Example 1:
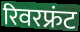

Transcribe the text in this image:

रिवरफ्रंट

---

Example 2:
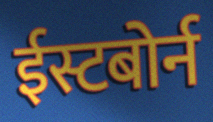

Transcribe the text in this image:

ईस्टबोर्न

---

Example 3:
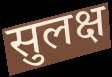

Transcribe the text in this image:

सुलक्ष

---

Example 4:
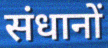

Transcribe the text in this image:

संधानों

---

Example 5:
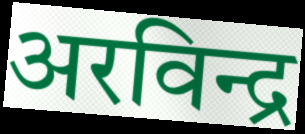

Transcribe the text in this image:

अरविन्द्र